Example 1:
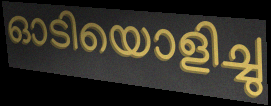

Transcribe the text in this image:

ഓടിയൊളിച്ചു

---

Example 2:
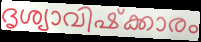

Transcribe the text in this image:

ദൃശ്യാവിഷ്‌ക്കാരം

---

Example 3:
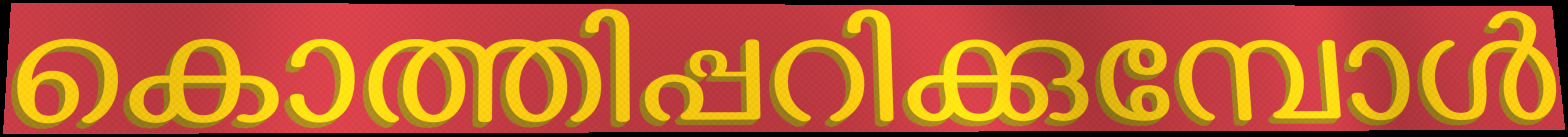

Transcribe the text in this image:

കൊത്തിപ്പറിക്കുമ്പോൾ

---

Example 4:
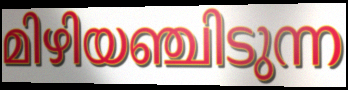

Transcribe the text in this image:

മിഴിയഞ്ചിടുന്ന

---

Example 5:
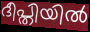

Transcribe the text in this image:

ദീപ്തിയിൽ